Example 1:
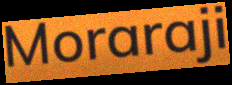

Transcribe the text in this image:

Moraraji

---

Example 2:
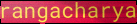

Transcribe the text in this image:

rangacharya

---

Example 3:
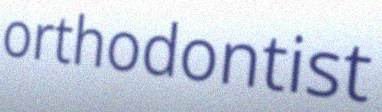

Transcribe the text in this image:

orthodontist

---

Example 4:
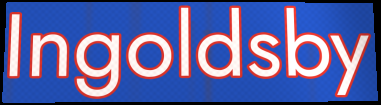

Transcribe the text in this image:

Ingoldsby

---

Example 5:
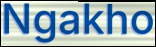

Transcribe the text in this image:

Ngakho